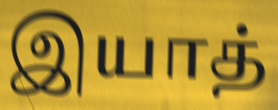
இயாத்